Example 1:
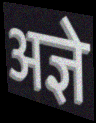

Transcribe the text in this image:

अज्ञे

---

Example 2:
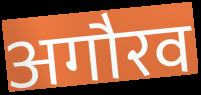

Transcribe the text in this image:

अगौरव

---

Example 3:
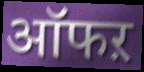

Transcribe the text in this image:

ऑफऱ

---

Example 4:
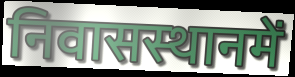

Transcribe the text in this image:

निवासस्थानमें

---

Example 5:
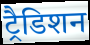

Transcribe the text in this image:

ट्रैडिशन